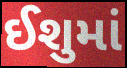
ઈશુમાં